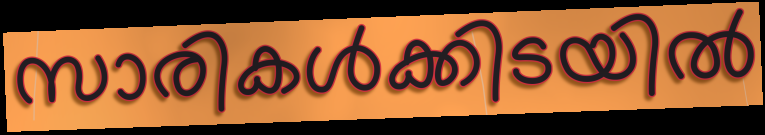
സാരികൾക്കിടയിൽ